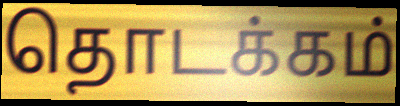
தொடக்கம்